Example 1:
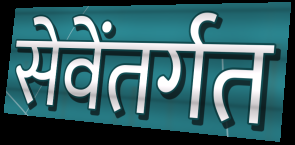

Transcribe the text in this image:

सेवेंतर्गत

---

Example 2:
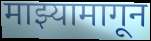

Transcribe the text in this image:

माझ्यामागून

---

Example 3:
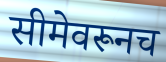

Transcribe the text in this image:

सीमेवरूनच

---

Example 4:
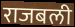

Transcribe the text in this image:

राजबली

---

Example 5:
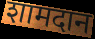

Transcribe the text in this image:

शामदान